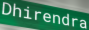
Dhirendra